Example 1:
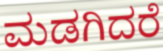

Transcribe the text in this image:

ಮಡಗಿದರೆ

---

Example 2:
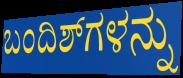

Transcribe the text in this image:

ಬಂದಿಶ್‌ಗಳನ್ನು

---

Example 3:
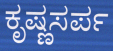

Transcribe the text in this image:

ಕೃಷ್ಣಸರ್ಪ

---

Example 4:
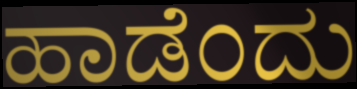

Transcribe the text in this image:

ಹಾಡೆಂದು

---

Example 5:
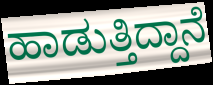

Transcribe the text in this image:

ಹಾಡುತ್ತಿದ್ದಾನೆ